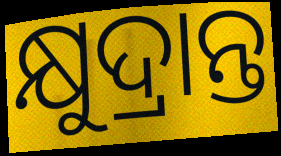
କ୍ଷୁଦ୍ରାନ୍ତ